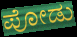
ಪೋಡು